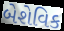
બેશેવિક